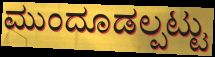
ಮುಂದೂಡಲ್ಪಟ್ಟು